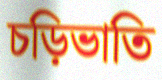
চড়িভাতি